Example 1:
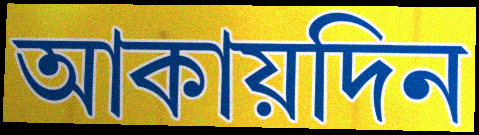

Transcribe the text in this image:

আকায়দিন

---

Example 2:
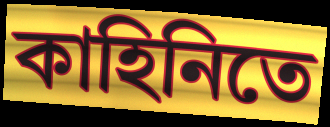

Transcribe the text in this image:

কাহিনিতে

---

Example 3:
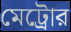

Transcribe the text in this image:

মেট্রোর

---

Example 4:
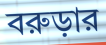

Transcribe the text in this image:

বরুড়ার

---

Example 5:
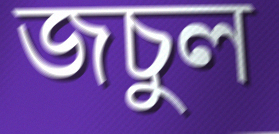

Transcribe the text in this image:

জচুল